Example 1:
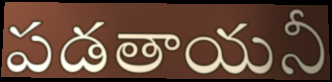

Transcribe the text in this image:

పడతాయనీ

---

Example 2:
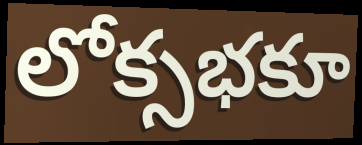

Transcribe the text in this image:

లోక్సభకూ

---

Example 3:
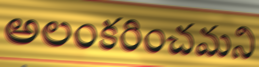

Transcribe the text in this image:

అలంకరించమని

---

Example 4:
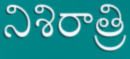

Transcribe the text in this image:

నిశిరాత్రి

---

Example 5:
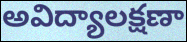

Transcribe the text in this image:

అవిద్యాలక్షణా